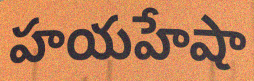
హయహేషా